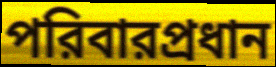
পরিবারপ্রধান